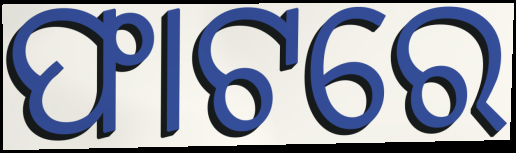
ଫାଟରେ